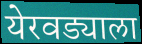
येरवड्याला